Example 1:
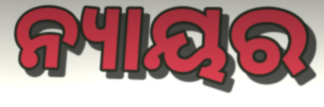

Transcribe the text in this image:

ନ୍ୟାୟର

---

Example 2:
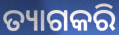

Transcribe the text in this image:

ତ୍ୟାଗକରି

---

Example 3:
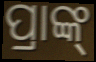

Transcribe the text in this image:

ପ୍ରାଙ୍କ୍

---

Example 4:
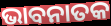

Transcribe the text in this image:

ଭାବନାତକ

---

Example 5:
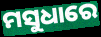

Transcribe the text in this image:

ମସୁଧାରେ